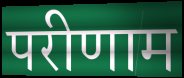
परीणाम